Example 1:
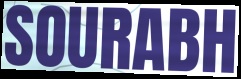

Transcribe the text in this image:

SOURABH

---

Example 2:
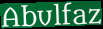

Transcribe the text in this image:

Abulfaz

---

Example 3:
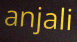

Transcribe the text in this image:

anjali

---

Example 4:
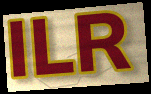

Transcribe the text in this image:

ILR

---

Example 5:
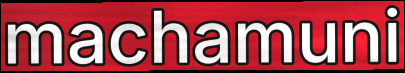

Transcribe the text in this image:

machamuni